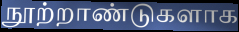
நூற்றாண்டுகளாக